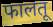
फालतू